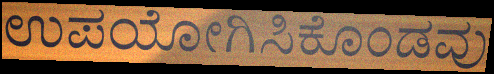
ಉಪಯೋಗಿಸಿಕೊಂಡವು